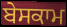
ਬੇਸਕਾਮ